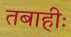
तबाहीः